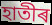
হাতীৰ